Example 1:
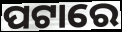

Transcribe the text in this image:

ପଟାରେ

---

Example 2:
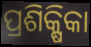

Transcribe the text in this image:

ପ୍ରଶିକ୍ଷିକା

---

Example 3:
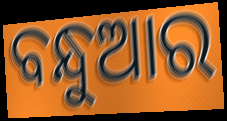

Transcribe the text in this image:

ବନ୍ଧୁଆର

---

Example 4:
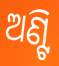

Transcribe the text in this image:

ଅଣ୍ଟି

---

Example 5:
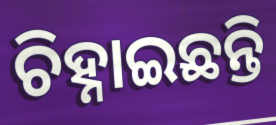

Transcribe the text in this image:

ଚିହ୍ନାଇଛନ୍ତି